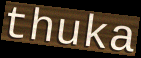
thuka